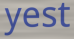
yest